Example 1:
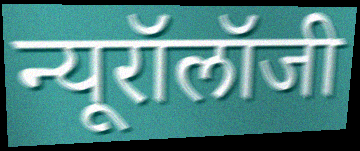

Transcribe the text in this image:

न्यूरॉलॉजी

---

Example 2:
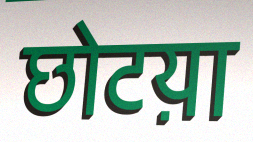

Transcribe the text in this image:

छोटय़ा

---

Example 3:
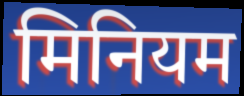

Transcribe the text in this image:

मिनियम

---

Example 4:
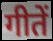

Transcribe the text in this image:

गीतें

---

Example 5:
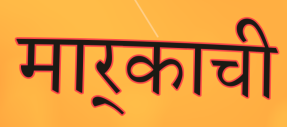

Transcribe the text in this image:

मार्काची